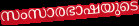
സംസാരഭാഷയുടെ